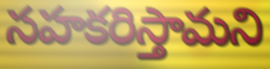
సహకరిస్తామని